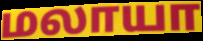
மலாயா